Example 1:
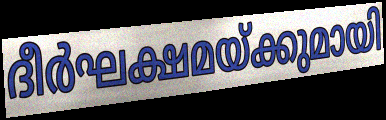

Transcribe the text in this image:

ദീർഘക്ഷമയ്ക്കുമായി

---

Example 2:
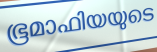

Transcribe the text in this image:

ഭൂമാഫിയയുടെ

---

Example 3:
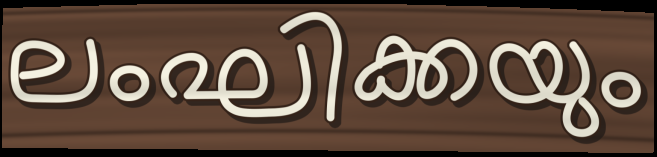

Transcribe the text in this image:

ലംഘിക്കയും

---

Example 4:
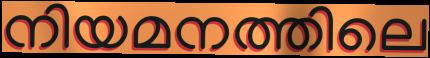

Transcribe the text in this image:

നിയമനത്തിലെ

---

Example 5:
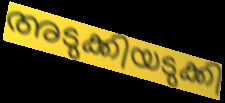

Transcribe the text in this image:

അടുക്കിയടുക്കി